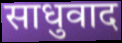
साधुवाद